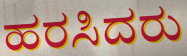
ಹರಸಿದರು